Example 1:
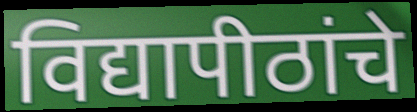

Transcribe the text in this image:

विद्यापीठांचे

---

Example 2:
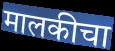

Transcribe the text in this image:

मालकीचा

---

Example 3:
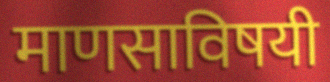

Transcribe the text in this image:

माणसाविषयी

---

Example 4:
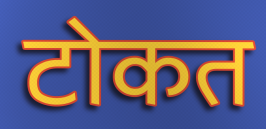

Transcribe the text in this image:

टोकत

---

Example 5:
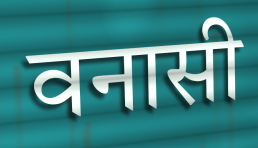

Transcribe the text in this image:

वनासी